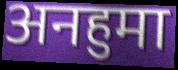
अनहुमा